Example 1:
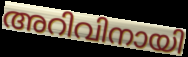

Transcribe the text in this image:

അറിവിനായി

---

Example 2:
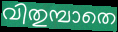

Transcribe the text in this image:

വിതുമ്പാതെ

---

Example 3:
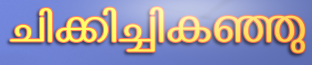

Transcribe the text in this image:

ചിക്കിച്ചികഞ്ഞു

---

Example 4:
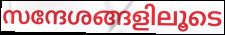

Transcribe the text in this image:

സന്ദേശങ്ങളിലൂടെ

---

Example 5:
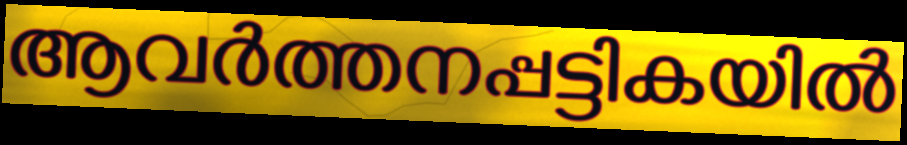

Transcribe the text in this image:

ആവർത്തനപ്പട്ടികയിൽ